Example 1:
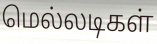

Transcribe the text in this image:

மெல்லடிகள்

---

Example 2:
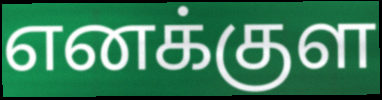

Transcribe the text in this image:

எனக்குள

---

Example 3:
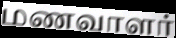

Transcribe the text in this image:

மணவாளர்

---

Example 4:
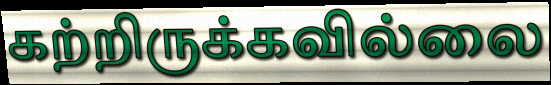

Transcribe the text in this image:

கற்றிருக்கவில்லை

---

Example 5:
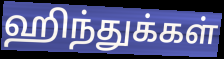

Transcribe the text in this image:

ஹிந்துக்கள்